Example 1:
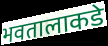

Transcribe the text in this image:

भवतालाकडे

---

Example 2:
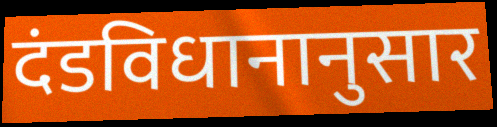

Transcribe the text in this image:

दंडविधानानुसार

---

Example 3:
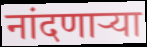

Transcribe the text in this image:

नांदणार्‍या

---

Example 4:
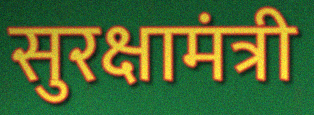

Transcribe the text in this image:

सुरक्षामंत्री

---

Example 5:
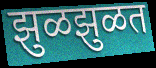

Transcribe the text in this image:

झुळझुळत